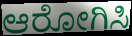
ಆರೋಗಿಸಿ